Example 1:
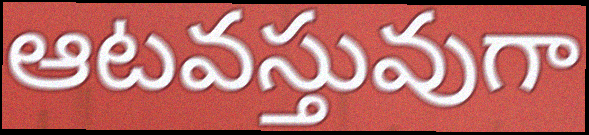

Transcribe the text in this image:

ఆటవస్తువుగా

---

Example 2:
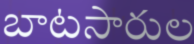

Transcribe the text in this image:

బాటసారుల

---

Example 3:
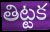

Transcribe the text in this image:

తిట్టక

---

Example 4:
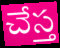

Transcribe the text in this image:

చేస్త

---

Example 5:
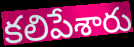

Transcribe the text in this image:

కలిపేశారు